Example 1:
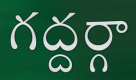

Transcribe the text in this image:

గద్దర్గా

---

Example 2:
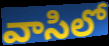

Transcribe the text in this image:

వాసిలో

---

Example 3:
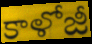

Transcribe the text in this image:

కాళోజీ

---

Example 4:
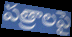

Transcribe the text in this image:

పత్రాలపై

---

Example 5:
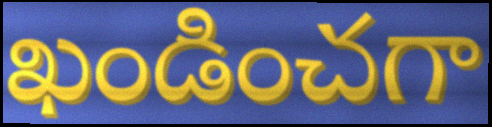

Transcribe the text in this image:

ఖండించగా